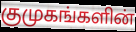
குமுகங்களின்